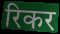
रिकर